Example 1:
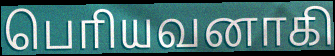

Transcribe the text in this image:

பெரியவனாகி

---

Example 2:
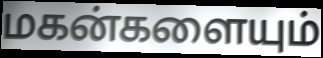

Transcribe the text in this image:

மகன்களையும்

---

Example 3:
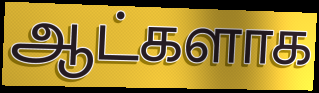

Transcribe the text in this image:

ஆட்களாக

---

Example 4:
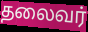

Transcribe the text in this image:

தலைவர்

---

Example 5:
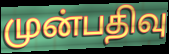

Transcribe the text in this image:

முன்பதிவு